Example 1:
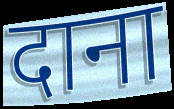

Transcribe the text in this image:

दाना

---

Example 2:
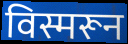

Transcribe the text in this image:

विस्मरून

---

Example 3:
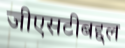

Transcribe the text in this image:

जीएसटीबद्दल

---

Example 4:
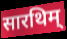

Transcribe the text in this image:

सारथिम्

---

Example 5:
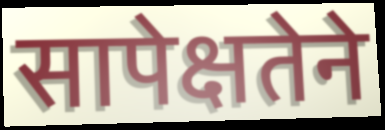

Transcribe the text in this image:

सापेक्षतेने